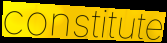
constitute